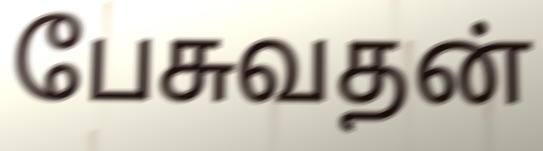
பேசுவதன்